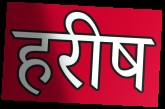
हरीष